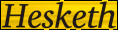
Hesketh